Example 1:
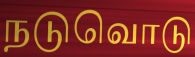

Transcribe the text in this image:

நடுவொடு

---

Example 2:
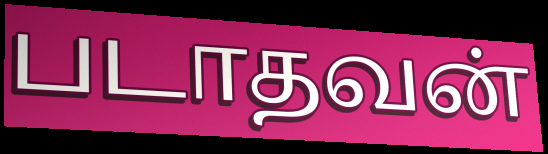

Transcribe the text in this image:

படாதவன்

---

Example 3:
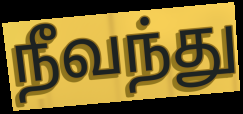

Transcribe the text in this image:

நீவந்து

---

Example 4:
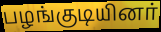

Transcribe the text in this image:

பழங்குடியினர்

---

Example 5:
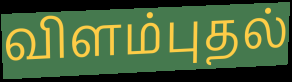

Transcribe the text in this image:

விளம்புதல்